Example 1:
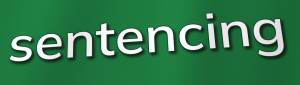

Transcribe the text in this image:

sentencing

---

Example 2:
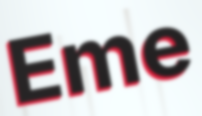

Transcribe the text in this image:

Eme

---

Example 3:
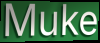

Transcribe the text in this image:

Muke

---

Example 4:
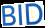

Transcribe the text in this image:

BID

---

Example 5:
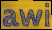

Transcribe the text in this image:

awi